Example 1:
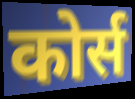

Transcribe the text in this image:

कोर्स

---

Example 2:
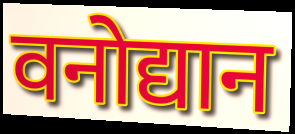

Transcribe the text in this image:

वनोद्यान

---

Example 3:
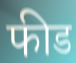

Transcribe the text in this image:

फीड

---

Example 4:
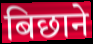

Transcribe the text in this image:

बिछाने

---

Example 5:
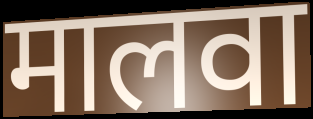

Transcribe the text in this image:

मालवा